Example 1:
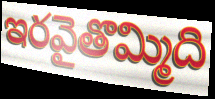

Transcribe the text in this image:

ఇరవైతొమ్మిది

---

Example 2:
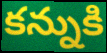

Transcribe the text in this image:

కన్నుకి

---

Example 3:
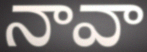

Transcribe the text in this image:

నావా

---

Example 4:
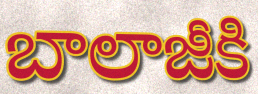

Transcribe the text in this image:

బాలాజీకి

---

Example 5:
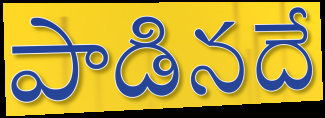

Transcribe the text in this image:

పాడినదే